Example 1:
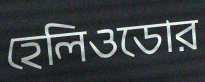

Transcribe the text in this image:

হেলিওডোর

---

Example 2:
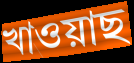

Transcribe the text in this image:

খাওয়াছ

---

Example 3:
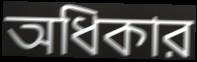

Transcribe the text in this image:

অধিকার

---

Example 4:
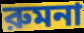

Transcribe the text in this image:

রুমনা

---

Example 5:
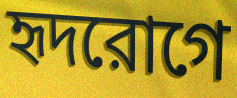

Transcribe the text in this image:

হৃদরোগে